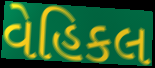
વેહિકલ